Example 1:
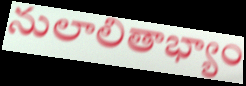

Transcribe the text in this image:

నులాలితాభ్యాం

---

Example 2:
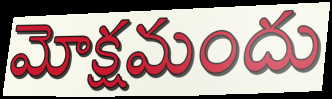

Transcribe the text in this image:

మోక్షమందు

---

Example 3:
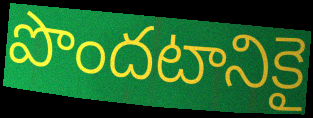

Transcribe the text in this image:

పొందటానికై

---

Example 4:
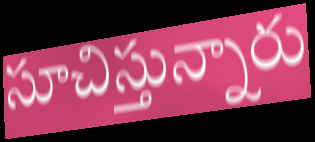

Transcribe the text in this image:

సూచిస్తున్నారు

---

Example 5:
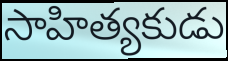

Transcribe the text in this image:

సాహిత్యకుడు